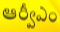
ఆర్వీఎం